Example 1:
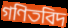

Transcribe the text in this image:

গণিতবিদ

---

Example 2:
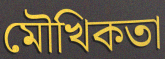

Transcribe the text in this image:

মৌখিকতা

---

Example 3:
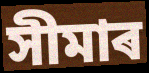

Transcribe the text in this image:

সীমাৰ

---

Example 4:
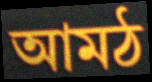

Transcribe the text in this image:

আমঠ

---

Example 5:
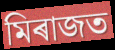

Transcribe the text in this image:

মিৰাজত